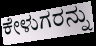
ಕೇಳುಗರನ್ನು